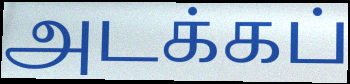
அடக்கப்